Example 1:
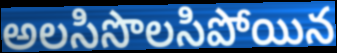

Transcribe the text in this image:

అలసిసొలసిపోయిన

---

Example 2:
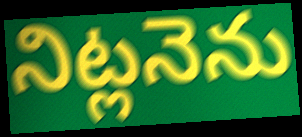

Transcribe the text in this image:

నిట్లనెను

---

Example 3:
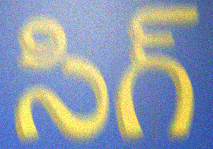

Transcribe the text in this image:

సిగ్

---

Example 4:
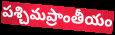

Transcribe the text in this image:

పశ్చిమప్రాంతీయం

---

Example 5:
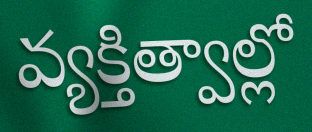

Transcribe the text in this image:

వ్యక్తిత్వాల్లో